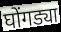
घोंगड्या